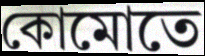
কোমোতে